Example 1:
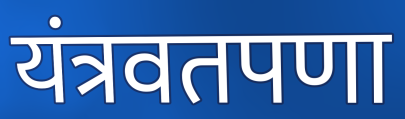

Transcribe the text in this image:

यंत्रवतपणा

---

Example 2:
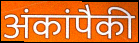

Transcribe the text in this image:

अंकांपैकी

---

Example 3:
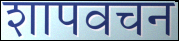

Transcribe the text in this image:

शापवचन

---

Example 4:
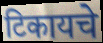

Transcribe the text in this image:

टिकायचे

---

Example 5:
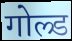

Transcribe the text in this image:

गोल्ड